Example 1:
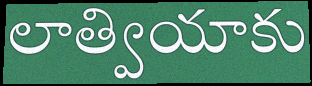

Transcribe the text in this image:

లాత్వియాకు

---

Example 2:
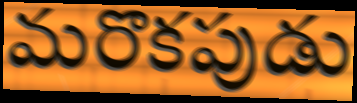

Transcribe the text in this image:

మరొకపుడు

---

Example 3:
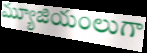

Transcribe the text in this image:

మ్యూజియంలుగా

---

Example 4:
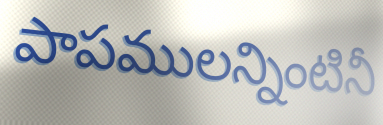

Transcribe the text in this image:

పాపములన్నింటినీ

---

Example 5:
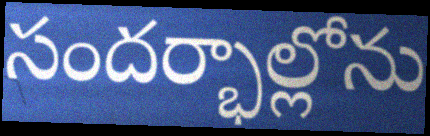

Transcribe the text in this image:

సందర్భాల్లోను